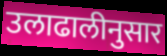
उलाढालीनुसार